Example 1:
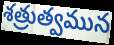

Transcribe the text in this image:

శత్రుత్వమున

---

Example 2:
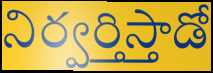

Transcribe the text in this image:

నిర్వర్తిస్తాడో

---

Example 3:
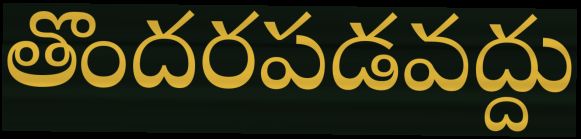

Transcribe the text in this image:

తొందరపడవద్దు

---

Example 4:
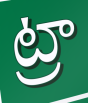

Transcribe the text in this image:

ట్రా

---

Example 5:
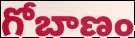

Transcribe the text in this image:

గోబాణం